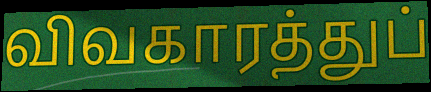
விவகாரத்துப்